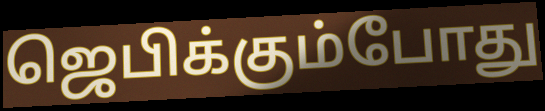
ஜெபிக்கும்போது